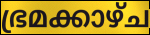
ഭ്രമക്കാഴ്ച